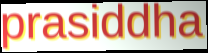
prasiddha